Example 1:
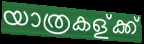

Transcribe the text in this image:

യാത്രകള്ക്ക്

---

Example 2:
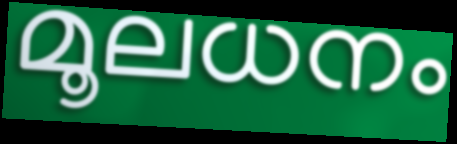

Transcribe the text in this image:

മൂലധനം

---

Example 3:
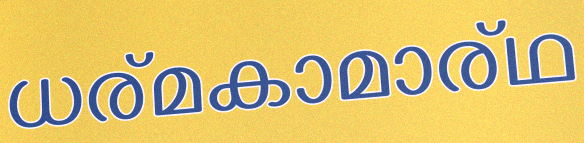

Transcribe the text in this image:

ധര്മകാമാര്ഥ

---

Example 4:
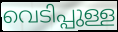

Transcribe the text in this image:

വെടിപ്പുള്ള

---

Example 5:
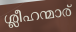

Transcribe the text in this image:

ശ്ലീഹന്മാര്